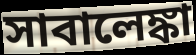
সাবালেঙ্কা